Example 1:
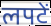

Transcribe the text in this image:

लपटें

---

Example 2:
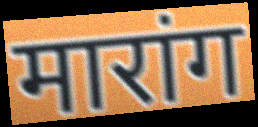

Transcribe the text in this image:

मारांग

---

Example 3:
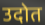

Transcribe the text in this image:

उदोत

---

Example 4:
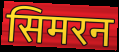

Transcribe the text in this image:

सिमरन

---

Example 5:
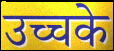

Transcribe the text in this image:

उच्चके